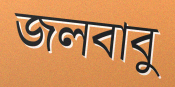
জলবাবু